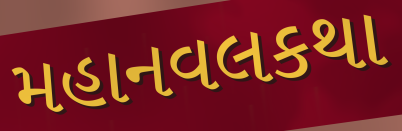
મહાનવલકથા